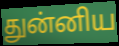
துன்னிய